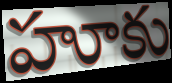
హూకు